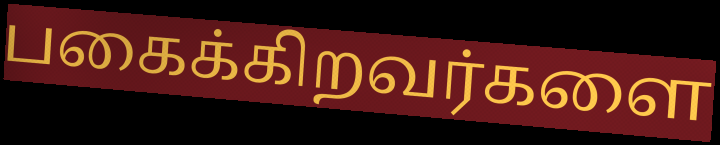
பகைக்கிறவர்களை